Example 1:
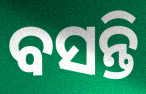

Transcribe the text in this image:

ବସନ୍ତି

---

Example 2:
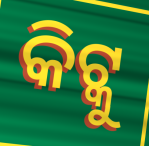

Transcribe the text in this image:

କିଟ୍କୁ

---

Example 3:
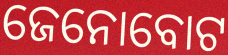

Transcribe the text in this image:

ଜେନୋବୋଟ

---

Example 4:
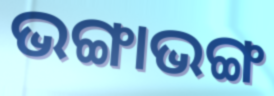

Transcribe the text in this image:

ଭଙ୍ଗାଭଙ୍ଗ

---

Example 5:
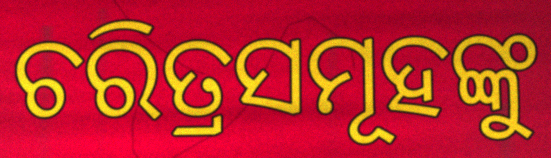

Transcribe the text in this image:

ଚରିତ୍ରସମୂହଙ୍କୁ